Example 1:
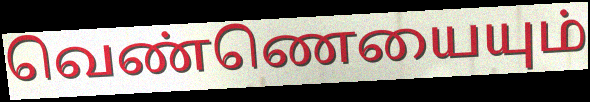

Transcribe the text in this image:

வெண்ணெயையும்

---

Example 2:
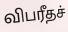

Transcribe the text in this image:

விபரீதச்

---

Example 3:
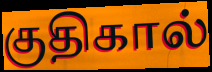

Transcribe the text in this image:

குதிகால்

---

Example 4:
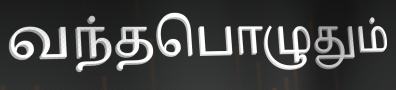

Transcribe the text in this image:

வந்தபொழுதும்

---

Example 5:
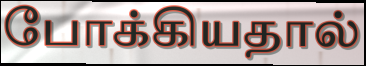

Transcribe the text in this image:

போக்கியதால்